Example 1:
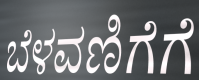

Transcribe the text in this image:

ಬೆಳವಣಿಗೆಗೆ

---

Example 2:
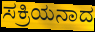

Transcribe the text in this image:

ಸಕ್ರಿಯನಾದ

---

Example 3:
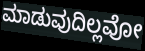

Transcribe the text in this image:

ಮಾಡುವುದಿಲ್ಲವೋ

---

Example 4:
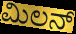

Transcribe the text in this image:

ಮಿಲನ್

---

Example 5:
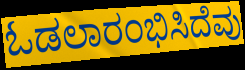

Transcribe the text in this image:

ಓಡಲಾರಂಭಿಸಿದೆವು